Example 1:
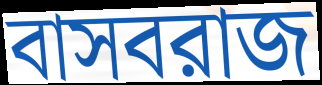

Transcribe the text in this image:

বাসবরাজ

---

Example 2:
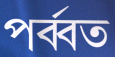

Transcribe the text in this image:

পর্ব্বত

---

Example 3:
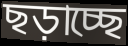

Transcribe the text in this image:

ছড়াচ্ছে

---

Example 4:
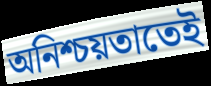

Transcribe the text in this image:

অনিশ্চয়তাতেই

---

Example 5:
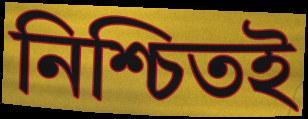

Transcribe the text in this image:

নিশ্চিতই